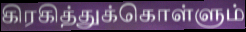
கிரகித்துக்கொள்ளும்